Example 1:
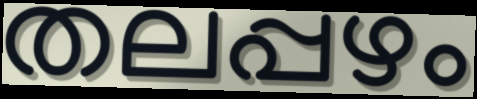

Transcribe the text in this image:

തലപ്പഴം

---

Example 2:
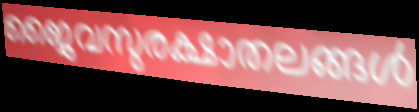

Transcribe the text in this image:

ജൈവസുരക്ഷാതലങ്ങൾ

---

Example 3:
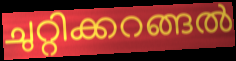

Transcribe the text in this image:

ചുറ്റിക്കറങ്ങൽ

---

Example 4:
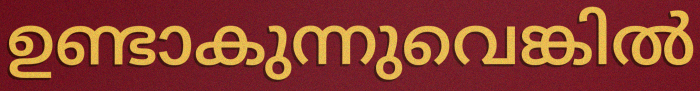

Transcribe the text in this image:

ഉണ്ടാകുന്നുവെങ്കിൽ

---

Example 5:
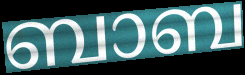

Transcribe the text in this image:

ബാബ